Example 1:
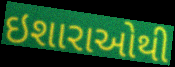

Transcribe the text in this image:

ઇશારાઓથી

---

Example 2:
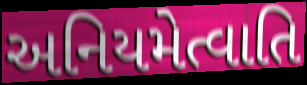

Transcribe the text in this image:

અનિયમેત્વાતિ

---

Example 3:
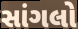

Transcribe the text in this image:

સાંગલો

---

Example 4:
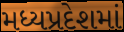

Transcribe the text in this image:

મધ્યપ્રદેશમાં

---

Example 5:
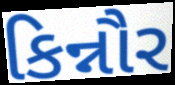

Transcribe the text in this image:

કિન્નૌર